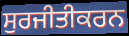
ਸੁਰਜੀਤੀਕਰਨ